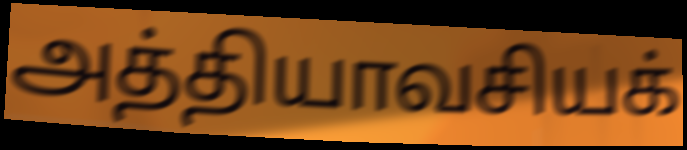
அத்தியாவசியக்